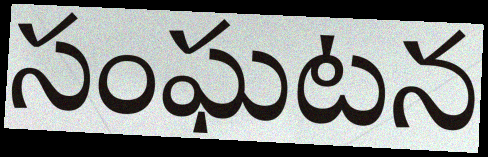
సంఘటన